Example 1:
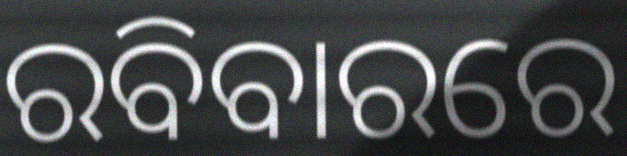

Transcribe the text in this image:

ରବିବାରରେ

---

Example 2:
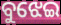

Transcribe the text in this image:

ବୁଝେଇ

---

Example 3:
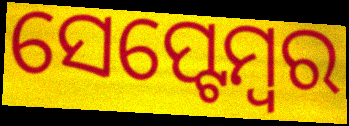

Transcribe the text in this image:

ସେପ୍ଟେମ୍ୱର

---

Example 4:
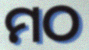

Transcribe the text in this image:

ମଠ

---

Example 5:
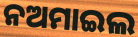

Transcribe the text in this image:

ନଅମାଇଲ